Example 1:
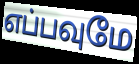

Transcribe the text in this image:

எப்பவுமே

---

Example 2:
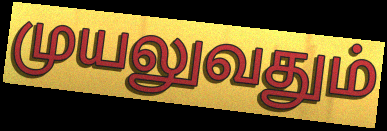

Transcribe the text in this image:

முயலுவதும்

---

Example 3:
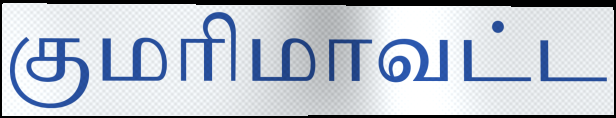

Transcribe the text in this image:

குமரிமாவட்ட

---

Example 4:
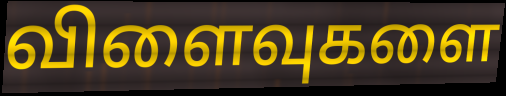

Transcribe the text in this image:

விளைவுகளை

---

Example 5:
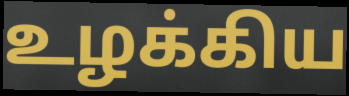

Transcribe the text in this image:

உழக்கிய